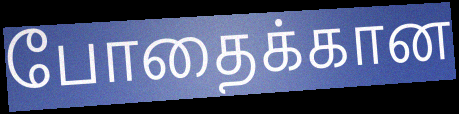
போதைக்கான